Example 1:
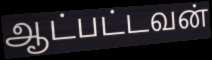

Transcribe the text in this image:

ஆட்பட்டவன்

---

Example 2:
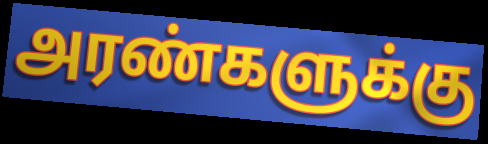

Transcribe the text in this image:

அரண்களுக்கு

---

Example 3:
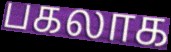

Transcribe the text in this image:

பகலாக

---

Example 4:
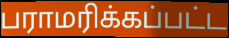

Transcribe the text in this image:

பராமரிக்கப்பட்ட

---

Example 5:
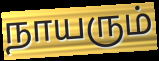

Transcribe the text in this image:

நாயரும்